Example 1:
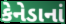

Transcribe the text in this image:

કેનેડાનાં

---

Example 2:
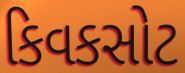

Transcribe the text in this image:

કિવકસોટ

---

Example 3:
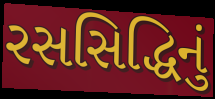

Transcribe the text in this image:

રસસિદ્ધિનું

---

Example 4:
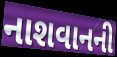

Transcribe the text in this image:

નાશવાનની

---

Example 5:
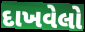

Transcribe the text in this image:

દાખવેલો